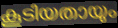
കൂടിയതായും